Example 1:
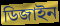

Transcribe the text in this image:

ডিজাইন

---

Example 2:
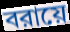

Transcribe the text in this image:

বরায়ে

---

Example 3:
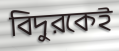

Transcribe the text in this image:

বিদুরকেই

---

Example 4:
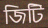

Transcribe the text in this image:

জিটি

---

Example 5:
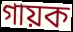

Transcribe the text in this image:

গায়ক